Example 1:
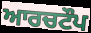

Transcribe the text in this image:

ਆਰਚਟੌਪ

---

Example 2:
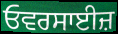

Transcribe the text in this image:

ਓਵਰਸਾਈਜ਼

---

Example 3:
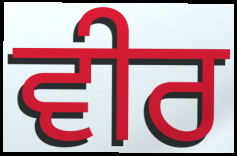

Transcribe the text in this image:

ਵੀਰ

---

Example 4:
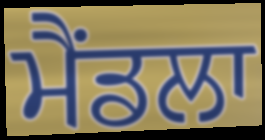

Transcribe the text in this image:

ਮੈਂਡਲਾ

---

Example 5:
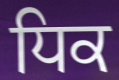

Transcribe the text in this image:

ਧਿਕ